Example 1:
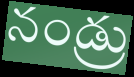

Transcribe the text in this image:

నండ్రు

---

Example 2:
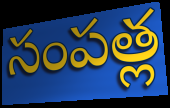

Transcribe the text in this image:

సంపత్ల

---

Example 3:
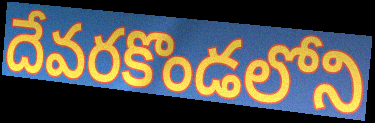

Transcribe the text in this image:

దేవరకొండలోని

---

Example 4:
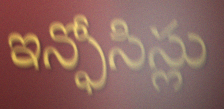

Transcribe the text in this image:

ఇన్ఫోసిస్లు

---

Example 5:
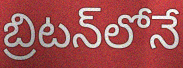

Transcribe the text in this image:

బ్రిటన్‌లోనే